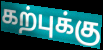
கற்புக்கு